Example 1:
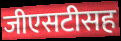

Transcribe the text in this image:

जीएसटीसह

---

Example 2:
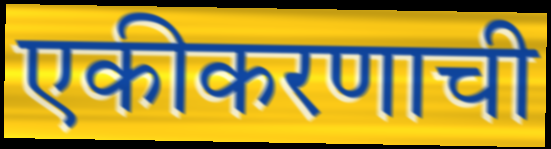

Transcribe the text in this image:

एकीकरणाची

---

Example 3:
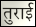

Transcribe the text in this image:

तुराई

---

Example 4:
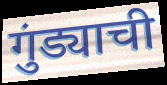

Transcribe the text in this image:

गुंड्याची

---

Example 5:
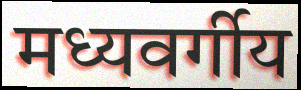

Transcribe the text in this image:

मध्यवर्गीय